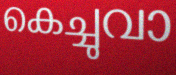
കെച്ചുവാ